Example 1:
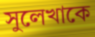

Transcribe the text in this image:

সুলেখাকে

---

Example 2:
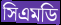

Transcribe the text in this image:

সিএমডি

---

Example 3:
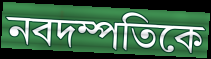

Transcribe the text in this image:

নবদম্পতিকে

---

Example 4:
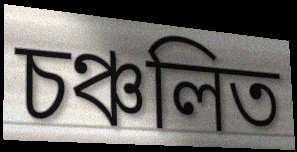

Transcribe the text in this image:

চঞ্চলিত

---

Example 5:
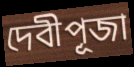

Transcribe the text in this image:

দেবীপূজা